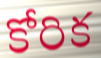
కోరిక